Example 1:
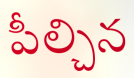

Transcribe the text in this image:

పీల్చిన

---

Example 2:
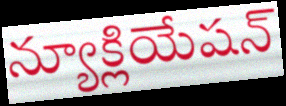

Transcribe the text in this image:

న్యూక్లియేషన్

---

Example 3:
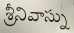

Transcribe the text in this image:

శ్రీనివాస్ను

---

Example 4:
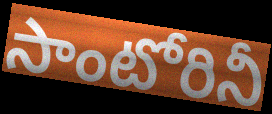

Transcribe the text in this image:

సాంటోరినీ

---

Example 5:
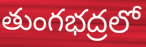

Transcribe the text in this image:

తుంగభద్రలో